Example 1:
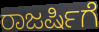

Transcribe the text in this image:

ರಾಜರ್ಷಿಗೆ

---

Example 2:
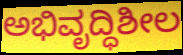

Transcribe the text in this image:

ಅಭಿವೃದ್ಧಿಶೀಲ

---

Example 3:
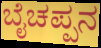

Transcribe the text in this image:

ಬೈಚಪ್ಪನ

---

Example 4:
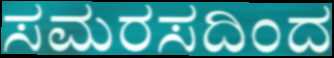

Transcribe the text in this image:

ಸಮರಸದಿಂದ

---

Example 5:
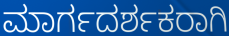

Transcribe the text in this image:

ಮಾರ್ಗದರ್ಶಕರಾಗಿ